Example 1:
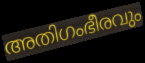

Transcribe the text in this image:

അതിഗംഭീരവും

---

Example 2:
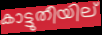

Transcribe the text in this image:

കാട്ടുതീയില്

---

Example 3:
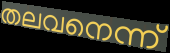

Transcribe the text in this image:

തലവനെന്ന്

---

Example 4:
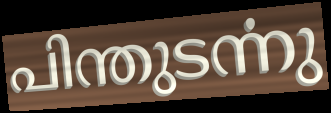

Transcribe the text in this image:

പിന്തുടൎന്നു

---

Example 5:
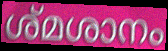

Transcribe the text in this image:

ശ്മശാനം